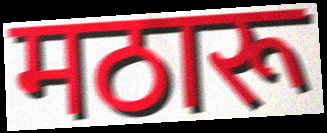
मठारू